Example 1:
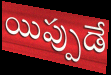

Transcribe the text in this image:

యిప్పుడే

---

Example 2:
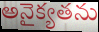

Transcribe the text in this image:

అనైక్యతను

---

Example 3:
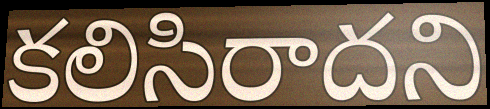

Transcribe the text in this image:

కలిసిరాదని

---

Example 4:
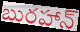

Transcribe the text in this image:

బురహాన్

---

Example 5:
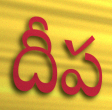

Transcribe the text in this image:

దీప